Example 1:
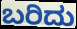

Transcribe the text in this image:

ಬರಿದು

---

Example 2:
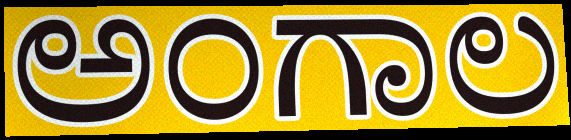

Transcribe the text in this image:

ಅಂಗಾಲ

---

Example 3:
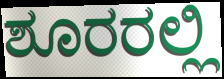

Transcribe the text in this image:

ಶೂರರಲ್ಲಿ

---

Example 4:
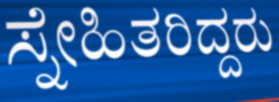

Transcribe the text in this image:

ಸ್ನೇಹಿತರಿದ್ದರು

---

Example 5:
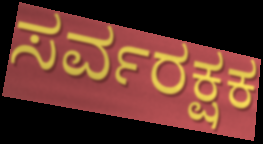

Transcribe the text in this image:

ಸರ್ವರಕ್ಷಕ